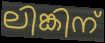
ലിങ്കിന്